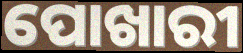
ପୋଖାରୀ